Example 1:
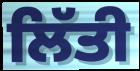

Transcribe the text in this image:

ਲਿੱਤੀ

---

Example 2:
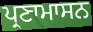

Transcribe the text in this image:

ਪ੍ਰਣਾਮਾਸਨ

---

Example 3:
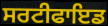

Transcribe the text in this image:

ਸਰਟੀਫਾਇਡ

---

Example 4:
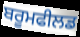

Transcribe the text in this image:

ਬਰੂਮਫੀਲਡ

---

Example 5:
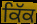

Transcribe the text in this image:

ਕਿੱਕ